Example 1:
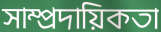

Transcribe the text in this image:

সাম্প্ৰদায়িকতা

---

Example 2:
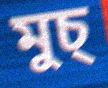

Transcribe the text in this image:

মুচ্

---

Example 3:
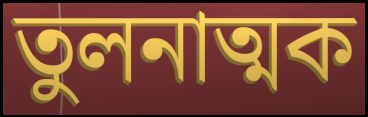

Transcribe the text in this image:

তুলনাত্মক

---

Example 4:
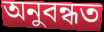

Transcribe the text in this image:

অনুবন্ধত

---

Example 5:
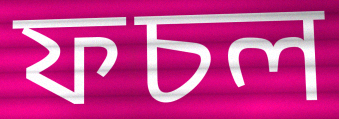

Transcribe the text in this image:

ফচল